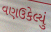
વણઉકેલ્યું